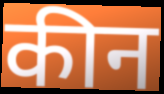
कीन